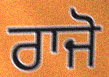
ਰਾਜੋ